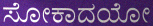
ಸೋಕಾದಯೋ